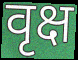
वृक्ष